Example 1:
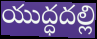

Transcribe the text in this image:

యుద్ధదల్లి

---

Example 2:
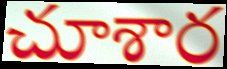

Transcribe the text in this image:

చూశార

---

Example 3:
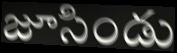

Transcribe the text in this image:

జూసిండు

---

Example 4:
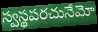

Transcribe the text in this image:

స్వస్థపరచునేమో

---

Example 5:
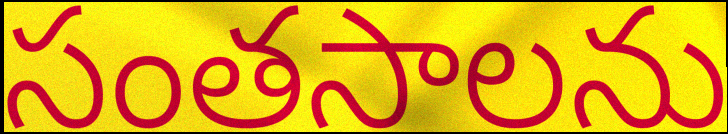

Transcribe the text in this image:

సంతసాలను